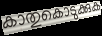
കാതുകൊടുക്കുക